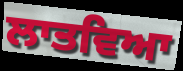
ਲਾਤਵਿਆ